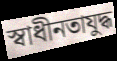
স্বাধীনতাযুদ্ধ